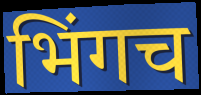
भिंगच